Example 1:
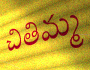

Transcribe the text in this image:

చితిమ్మ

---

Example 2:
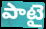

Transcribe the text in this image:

పాటై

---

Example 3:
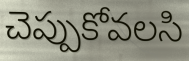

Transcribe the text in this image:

చెప్పుకోవలసి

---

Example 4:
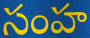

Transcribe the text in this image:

సంహ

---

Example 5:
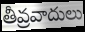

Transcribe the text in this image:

తీవ్రవాదులు